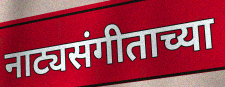
नाट्यसंगीताच्या